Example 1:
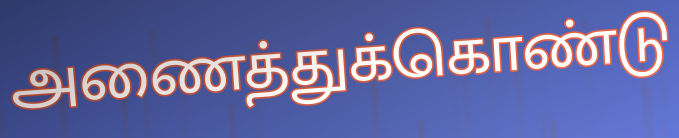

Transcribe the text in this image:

அணைத்துக்கொண்டு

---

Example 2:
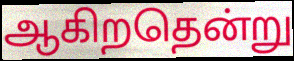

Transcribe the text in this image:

ஆகிறதென்று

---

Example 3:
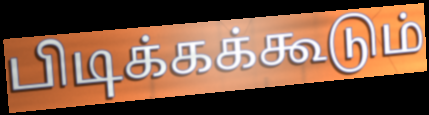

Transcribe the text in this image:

பிடிக்கக்கூடும்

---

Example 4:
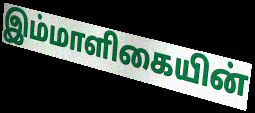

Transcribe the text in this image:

இம்மாளிகையின்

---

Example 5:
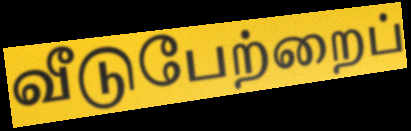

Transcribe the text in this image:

வீடுபேற்றைப்